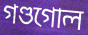
গণ্ডগোল